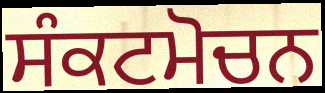
ਸੰਕਟਮੋਚਨ